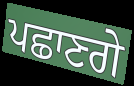
ਪਛਾਣਗੇ